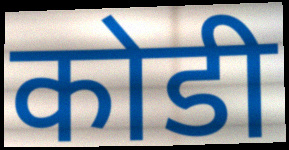
कोडी